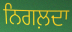
ਨਿਗਲ਼ਦਾ